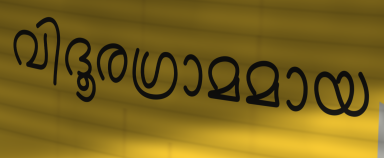
വിദൂരഗ്രാമമായ